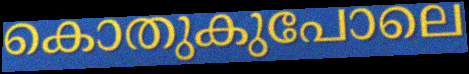
കൊതുകുപോലെ